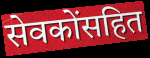
सेवकोंसहित